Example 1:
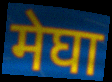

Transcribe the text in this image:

मेघा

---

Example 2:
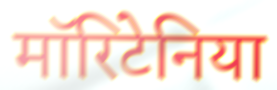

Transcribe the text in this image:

मॉरिटेनिया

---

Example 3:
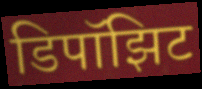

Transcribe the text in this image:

डिपॉझिट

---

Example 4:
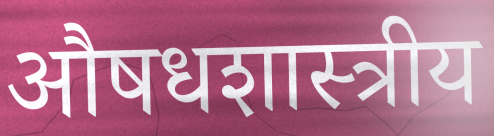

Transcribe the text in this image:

औषधशास्त्रीय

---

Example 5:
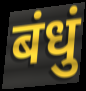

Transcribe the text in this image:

बंधुं